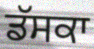
ਡੱਸਕਾ